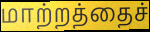
மாற்றத்தைச்